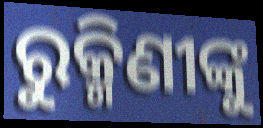
ରୁକ୍ମିଣୀଙ୍କୁ